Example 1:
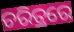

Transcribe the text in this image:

ଚରିତ୍ରରେ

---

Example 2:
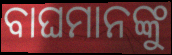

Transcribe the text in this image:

ବାଘମାନଙ୍କୁ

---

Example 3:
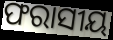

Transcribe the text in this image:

ଫରାସୀୟ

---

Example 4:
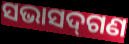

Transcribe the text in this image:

ସଭାସଦ୍‌ଗଣ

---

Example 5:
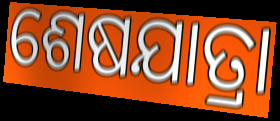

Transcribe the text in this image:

ଶେଷଯାତ୍ରା